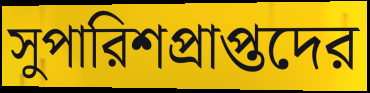
সুপারিশপ্রাপ্তদের